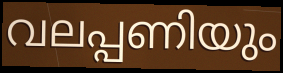
വലപ്പണിയും